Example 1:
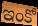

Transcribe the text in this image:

ఇంకో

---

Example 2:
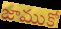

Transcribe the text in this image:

జాముకో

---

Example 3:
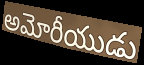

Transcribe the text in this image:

అమోరీయుడు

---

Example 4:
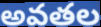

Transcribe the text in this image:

అవతల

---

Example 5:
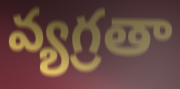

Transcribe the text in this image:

వ్యగ్రతా